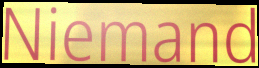
Niemand